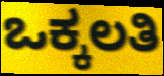
ಒಕ್ಕಲತಿ